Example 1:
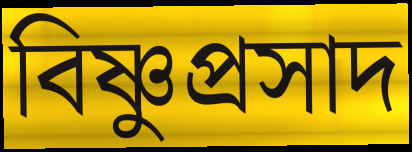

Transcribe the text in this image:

বিষ্ণুপ্ৰসাদ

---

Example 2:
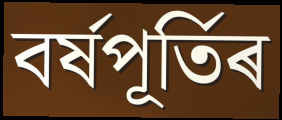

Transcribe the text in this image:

বৰ্ষপূৰ্তিৰ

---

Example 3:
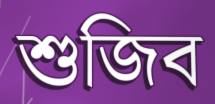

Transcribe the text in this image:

শুজিব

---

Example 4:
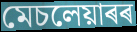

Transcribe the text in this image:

মেচলেয়াৰৰ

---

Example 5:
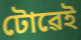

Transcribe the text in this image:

টোৱেই